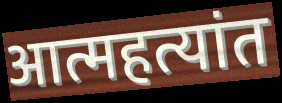
आत्महत्यांत